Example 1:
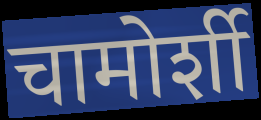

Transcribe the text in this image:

चामोर्शी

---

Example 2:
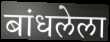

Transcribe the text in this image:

बांधलेला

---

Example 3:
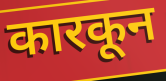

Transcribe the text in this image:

कारकून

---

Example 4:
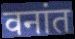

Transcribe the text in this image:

वनांत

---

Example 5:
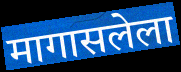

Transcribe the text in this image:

मागासलेला